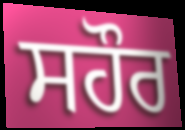
ਸਹੌਰ